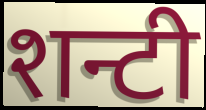
शन्टी